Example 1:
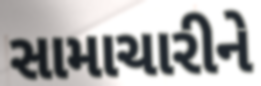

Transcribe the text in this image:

સામાચારીને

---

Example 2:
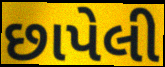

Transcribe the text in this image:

છાપેલી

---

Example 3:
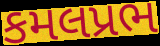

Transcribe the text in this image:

કમલપ્રભ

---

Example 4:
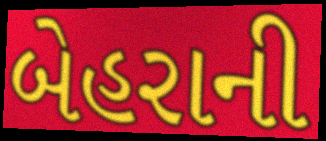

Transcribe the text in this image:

બેહરાની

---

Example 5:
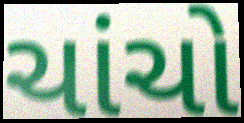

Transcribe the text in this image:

ચાંચો